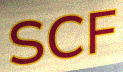
SCF